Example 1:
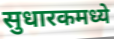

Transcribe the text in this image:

सुधारकमध्ये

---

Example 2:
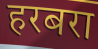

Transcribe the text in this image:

हरबरा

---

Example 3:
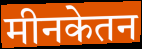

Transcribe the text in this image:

मीनकेतन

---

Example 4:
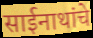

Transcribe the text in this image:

साईनाथांचे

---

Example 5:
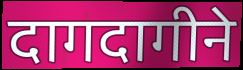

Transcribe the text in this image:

दागदागीने